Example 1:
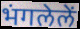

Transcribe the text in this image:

भंगलेलें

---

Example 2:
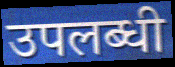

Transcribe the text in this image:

उपलब्धी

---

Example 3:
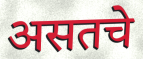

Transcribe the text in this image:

असतचे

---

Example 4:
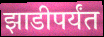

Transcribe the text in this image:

झाडीपर्यंत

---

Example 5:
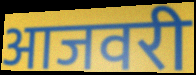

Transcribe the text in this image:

आजवरी